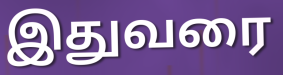
இதுவரை